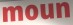
moun